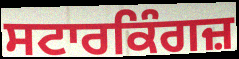
ਸਟਾਰਕਿੰਗਜ਼